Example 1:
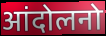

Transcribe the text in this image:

आंदोलनो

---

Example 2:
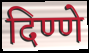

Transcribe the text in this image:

दिण्णे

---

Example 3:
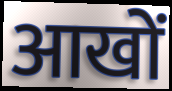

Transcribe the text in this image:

आखों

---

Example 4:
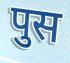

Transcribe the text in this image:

पुस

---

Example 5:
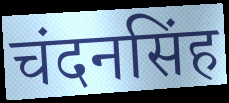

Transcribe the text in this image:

चंदनसिंह